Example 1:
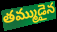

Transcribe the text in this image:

తమ్ముడైన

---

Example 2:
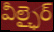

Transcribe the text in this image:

వీల్ఛైర్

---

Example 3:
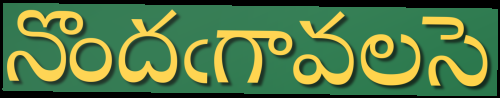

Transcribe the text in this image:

నొందఁగావలసె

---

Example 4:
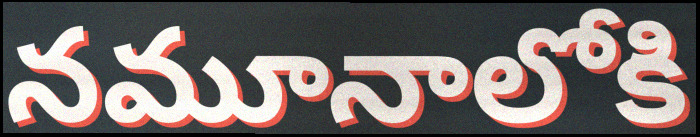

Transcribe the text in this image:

నమూనాలోకి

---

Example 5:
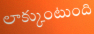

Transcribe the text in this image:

లాక్కుంటుంది